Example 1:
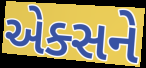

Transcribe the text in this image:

એક્સને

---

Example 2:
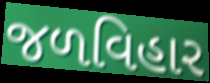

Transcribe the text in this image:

જળવિહાર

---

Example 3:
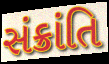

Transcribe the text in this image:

સંક્રાંતિ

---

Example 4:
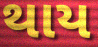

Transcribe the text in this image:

થાય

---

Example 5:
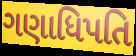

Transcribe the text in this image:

ગણાધિપતિ